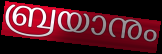
ബ്രയാനും